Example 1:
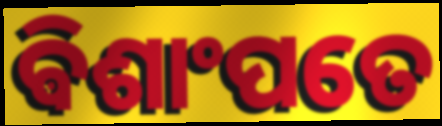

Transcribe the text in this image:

ଵିଶାଂପତେ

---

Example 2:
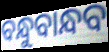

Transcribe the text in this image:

ବନ୍ଧୁବାନ୍ଧବ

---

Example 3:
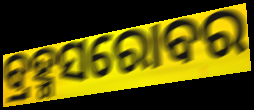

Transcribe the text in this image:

ବ୍ରହ୍ମସରୋବର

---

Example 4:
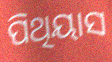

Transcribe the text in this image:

ପିଥିୟାସ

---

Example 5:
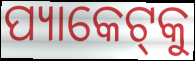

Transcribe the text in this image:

ପ୍ୟାକେଟ୍‌କୁ